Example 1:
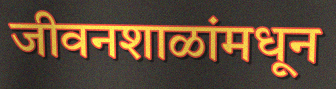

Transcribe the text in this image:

जीवनशाळांमधून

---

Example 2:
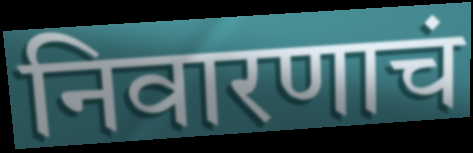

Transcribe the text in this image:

निवारणाचं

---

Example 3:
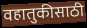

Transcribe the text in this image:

वहातुकीसाठी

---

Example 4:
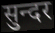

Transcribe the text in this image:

सुन्दर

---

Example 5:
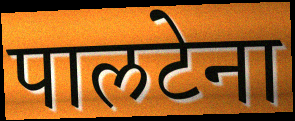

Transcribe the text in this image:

पालटेना